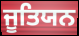
ਜੂਤਿਯਨ